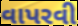
વાપરવી